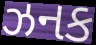
ઝનક